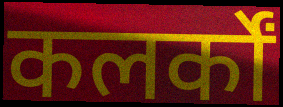
कलर्कों